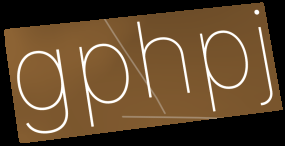
gphpj